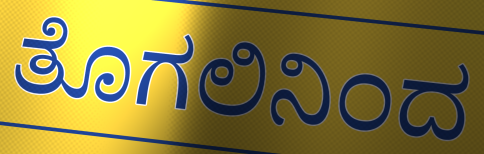
ತೊಗಲಿನಿಂದ